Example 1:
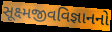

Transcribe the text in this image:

સૂક્ષ્મજીવવિજ્ઞાનનો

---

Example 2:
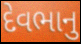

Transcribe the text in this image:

દેવભાનુ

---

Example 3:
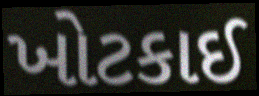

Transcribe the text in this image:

ખોટકાઈ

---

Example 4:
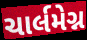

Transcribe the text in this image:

ચાર્લમેગ્ન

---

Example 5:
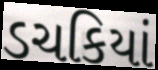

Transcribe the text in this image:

ડચકિયાં